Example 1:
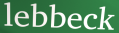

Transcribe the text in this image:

lebbeck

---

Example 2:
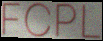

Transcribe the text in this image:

FCPL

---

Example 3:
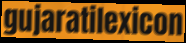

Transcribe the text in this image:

gujaratilexicon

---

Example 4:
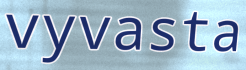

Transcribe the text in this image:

vyvasta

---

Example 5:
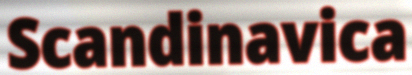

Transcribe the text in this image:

Scandinavica